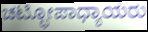
ಚಟ್ಟೋಪಾಧ್ಯಾಯರು